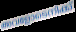
അവളോടെനിക്ക്